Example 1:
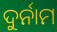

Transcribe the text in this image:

ଦୁର୍ନାମ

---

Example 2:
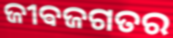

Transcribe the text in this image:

ଜୀଵଜଗତର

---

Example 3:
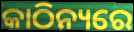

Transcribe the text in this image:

କାଠିନ୍ୟରେ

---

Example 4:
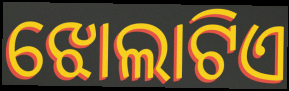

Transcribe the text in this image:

ଝୋଲାଟିଏ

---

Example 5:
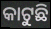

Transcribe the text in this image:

କାଟୁଛି